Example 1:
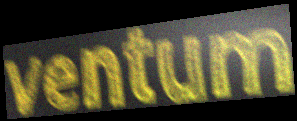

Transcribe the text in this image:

ventum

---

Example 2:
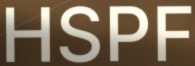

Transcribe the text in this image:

HSPF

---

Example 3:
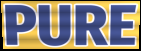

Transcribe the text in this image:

PURE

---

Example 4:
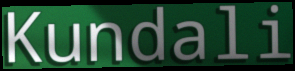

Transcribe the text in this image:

Kundali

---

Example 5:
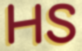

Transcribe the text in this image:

HS